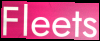
Fleets